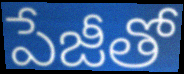
పేజీతో